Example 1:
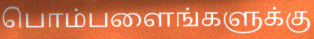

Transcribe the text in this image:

பொம்பளைங்களுக்கு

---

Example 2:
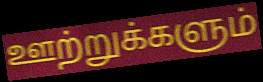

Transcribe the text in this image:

ஊற்றுக்களும்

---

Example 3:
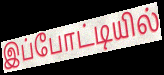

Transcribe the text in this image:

இப்போட்டியில்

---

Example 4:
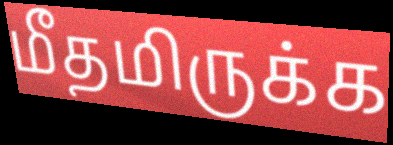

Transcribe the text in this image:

மீதமிருக்க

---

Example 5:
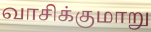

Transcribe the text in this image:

வாசிக்குமாறு